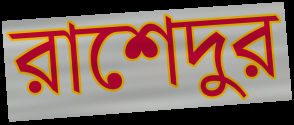
রাশেদুর